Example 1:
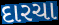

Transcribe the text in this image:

દારચા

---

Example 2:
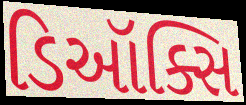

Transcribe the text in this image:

ડિઑક્સિ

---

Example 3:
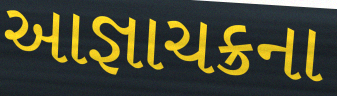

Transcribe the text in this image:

આજ્ઞાચક્રના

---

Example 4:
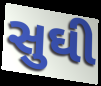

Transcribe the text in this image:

સુઘી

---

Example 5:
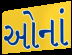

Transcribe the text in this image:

ઓનાં